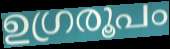
ഉഗ്രരൂപം